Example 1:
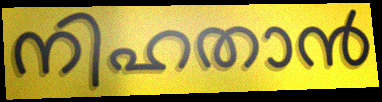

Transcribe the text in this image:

നിഹതാൻ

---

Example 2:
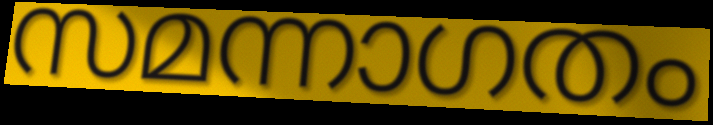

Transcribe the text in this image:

സമന്നാഗതം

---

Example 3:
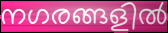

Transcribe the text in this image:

നഗരങ്ങളിൽ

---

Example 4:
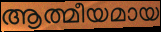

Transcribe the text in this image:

ആത്മീയമായ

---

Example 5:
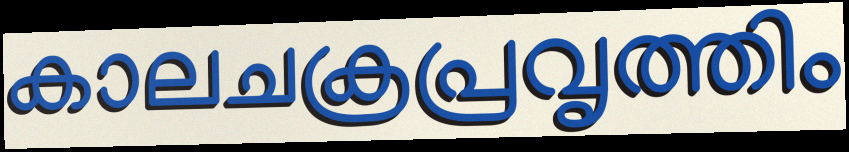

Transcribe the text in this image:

കാലചക്രപ്രവൃത്തിം